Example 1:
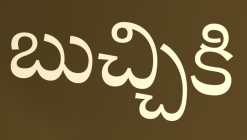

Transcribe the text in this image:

బుచ్చికి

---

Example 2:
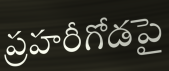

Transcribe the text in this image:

ప్రహరీగోడపై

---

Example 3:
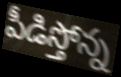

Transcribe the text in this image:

పీడిస్తోన్న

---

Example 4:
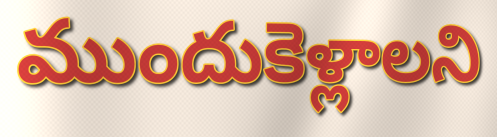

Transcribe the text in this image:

ముందుకెళ్లాలని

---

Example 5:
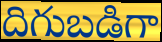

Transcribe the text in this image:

దిగుబడిగా